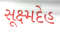
સૂક્ષ્મદેહ